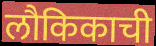
लौकिकाची